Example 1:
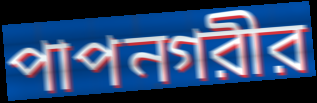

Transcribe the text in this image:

পাপনগরীর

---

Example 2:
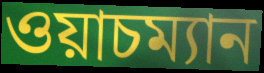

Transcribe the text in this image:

ওয়াচম্যান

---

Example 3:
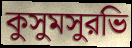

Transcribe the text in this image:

কুসুমসুরভি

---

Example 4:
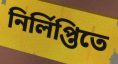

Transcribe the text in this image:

নির্লিপ্তিতে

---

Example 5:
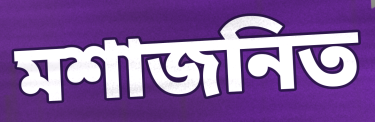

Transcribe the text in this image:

মশাজনিত